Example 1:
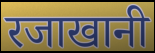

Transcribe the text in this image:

रजाखानी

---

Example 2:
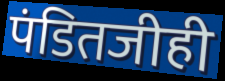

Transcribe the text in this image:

पंडितजीही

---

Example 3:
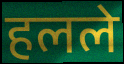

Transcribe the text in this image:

हलले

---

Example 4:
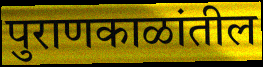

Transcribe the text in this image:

पुराणकाळांतील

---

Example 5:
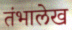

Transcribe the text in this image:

तंभालेख